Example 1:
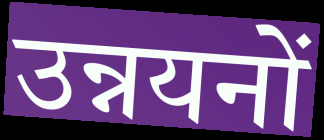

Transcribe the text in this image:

उन्नयनों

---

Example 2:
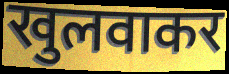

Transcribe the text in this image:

खुलवाकर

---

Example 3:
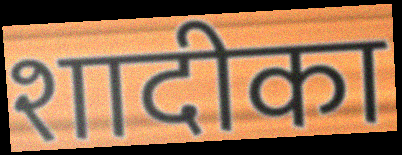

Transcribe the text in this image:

शादीका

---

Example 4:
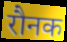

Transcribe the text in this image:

रौनक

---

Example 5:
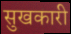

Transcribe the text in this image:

सुखकारी